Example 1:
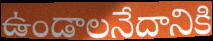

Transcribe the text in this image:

ఉండాలనేదానికి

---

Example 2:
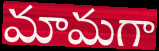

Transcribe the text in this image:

మామగా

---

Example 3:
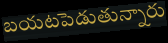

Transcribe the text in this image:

బయటపెడుతున్నారు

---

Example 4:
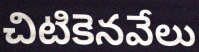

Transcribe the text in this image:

చిటికెనవేలు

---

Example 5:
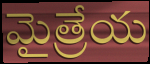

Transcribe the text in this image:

మైత్రేయ